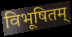
विभूषितम्